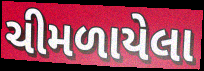
ચીમળાયેલા